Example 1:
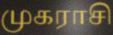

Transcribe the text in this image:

முகராசி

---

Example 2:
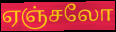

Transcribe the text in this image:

ஏஞ்சலோ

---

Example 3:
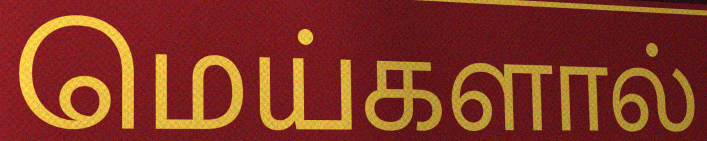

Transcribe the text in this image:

மெய்களால்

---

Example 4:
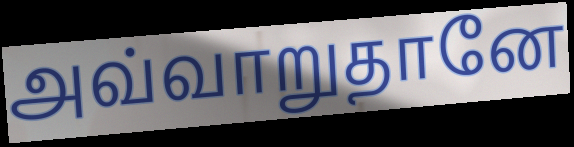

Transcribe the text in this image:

அவ்வாறுதானே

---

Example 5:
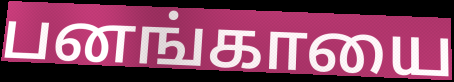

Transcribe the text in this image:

பனங்காயை